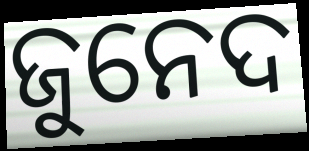
ଜୁନେଦ